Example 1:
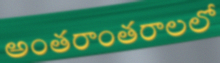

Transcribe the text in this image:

అంతరాంతరాలలో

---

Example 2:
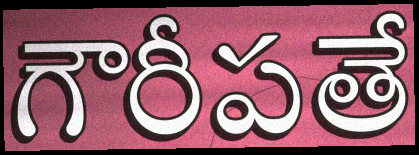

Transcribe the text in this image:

గౌరీపతే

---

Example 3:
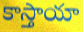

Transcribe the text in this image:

కాస్తాయా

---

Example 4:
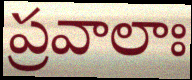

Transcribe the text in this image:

ప్రవాలాః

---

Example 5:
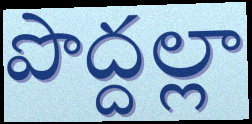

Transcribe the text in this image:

పొద్దల్లా